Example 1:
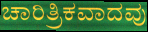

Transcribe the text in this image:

ಚಾರಿತ್ರಿಕವಾದವು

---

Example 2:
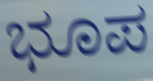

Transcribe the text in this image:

ಭೂಪ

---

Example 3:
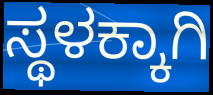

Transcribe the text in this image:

ಸ್ಥಳಕ್ಕಾಗಿ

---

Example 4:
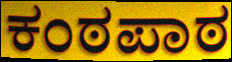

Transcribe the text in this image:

ಕಂಠಪಾಠ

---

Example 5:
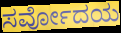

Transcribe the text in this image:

ಸರ್ವೋದಯ